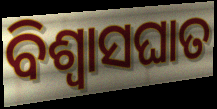
ବିଶ୍ବାସଘାତ